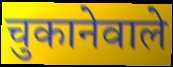
चुकानेवाले